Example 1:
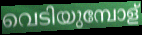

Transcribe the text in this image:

വെടിയുമ്പോള്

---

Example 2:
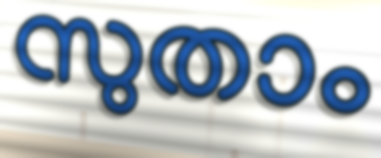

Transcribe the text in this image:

സുതാം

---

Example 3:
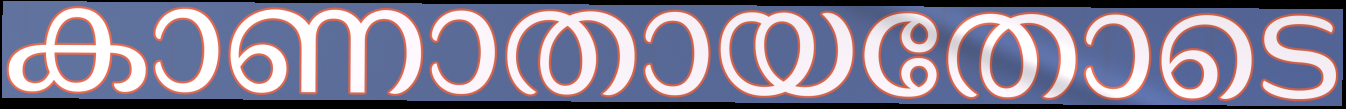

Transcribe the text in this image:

കാണാതായതോടെ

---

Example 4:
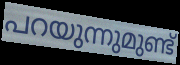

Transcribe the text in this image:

പറയുന്നുമുണ്ട്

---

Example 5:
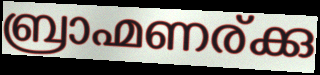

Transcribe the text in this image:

ബ്രാഹ്മണര്ക്കു